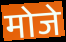
मोजे